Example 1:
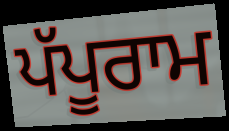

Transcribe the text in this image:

ਪੱਪੂਰਾਮ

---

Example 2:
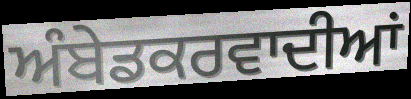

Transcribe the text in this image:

ਅੰਬੇਡਕਰਵਾਦੀਆਂ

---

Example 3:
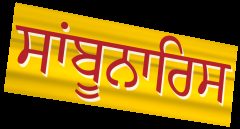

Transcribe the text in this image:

ਸਾਂਬੂਨਾਰਿਸ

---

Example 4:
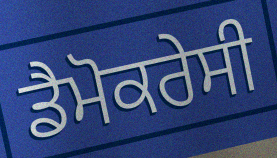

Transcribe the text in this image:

ਡੈਮੋਕਰੇਸੀ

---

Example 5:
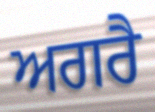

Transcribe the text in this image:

ਅਗਰੈ